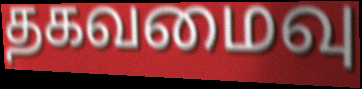
தகவமைவு